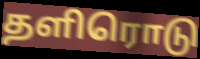
தளிரொடு